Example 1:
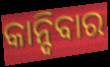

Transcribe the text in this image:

କାନ୍ଦିବାର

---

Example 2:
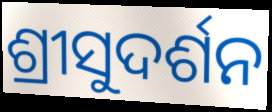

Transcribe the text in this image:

ଶ୍ରୀସୁଦର୍ଶନ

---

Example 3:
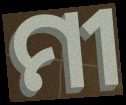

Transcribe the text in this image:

ମୀ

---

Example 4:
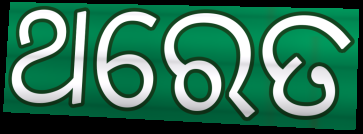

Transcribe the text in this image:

ଥରେତ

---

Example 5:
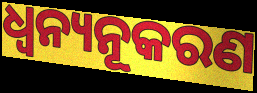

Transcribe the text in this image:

ଧ୍ୱନ୍ୟନୂକରଣ